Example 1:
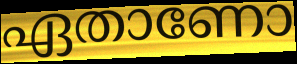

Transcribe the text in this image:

ഏതാണോ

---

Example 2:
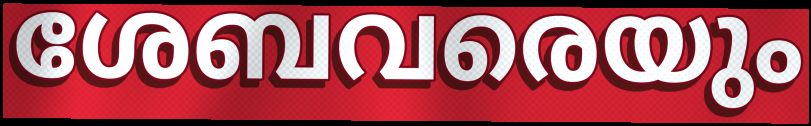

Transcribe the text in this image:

ശേബവരെയും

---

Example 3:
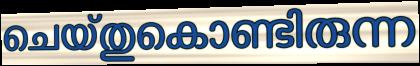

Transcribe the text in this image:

ചെയ്തുകൊണ്ടിരുന്ന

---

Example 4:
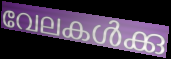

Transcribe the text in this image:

വേലകൾക്കു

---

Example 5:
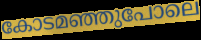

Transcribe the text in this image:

കോടമഞ്ഞുപോലെ